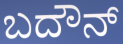
ಬದೌನ್